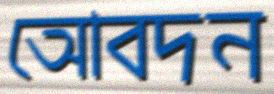
আেবদন